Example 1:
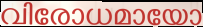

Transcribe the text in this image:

വിരോധമായോ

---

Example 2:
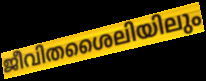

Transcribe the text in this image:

ജീവിതശൈലിയിലും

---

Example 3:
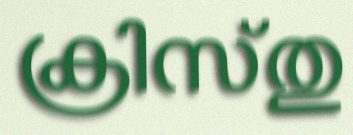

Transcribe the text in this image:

ക്രിസ്‌തു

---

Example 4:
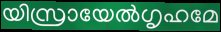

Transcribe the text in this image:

യിസ്രായേൽഗൃഹമേ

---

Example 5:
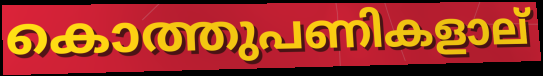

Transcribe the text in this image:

കൊത്തുപണികളാല്